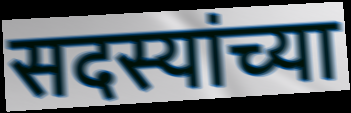
सदस्यांच्या